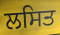
ਲਸਿਤ